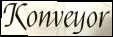
Konveyor